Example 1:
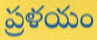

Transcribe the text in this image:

ప్రళయం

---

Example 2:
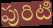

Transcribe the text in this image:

పురిటి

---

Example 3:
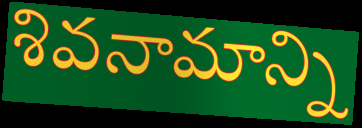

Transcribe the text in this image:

శివనామాన్ని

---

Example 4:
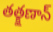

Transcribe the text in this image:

తత్క్షణాన్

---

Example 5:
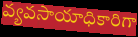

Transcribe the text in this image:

వ్యవసాయాధికారిగా